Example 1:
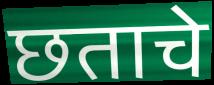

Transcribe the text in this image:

छताचे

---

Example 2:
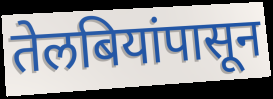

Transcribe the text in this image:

तेलबियांपासून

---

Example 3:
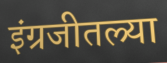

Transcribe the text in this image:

इंग्रजीतल्या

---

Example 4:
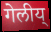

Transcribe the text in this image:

गेलीय्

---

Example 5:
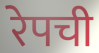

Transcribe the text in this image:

रेपची